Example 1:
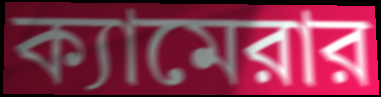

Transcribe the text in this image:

ক্যামেরার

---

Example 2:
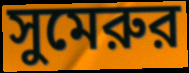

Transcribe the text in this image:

সুমেরুর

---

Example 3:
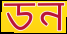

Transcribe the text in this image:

ডন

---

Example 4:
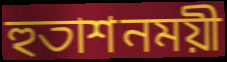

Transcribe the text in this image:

হুতাশনময়ী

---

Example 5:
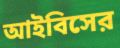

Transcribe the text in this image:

আইবিসের